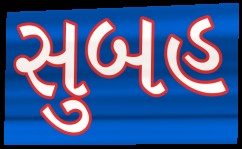
સુબહ